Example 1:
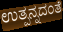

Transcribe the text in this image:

ಉತ್ಪನ್ನದಂತೆ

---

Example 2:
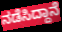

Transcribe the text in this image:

ನಡೆಸಿದ್ದಾನೆ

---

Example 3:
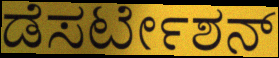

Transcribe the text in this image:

ಡೆಸರ್ಟೇಶನ್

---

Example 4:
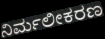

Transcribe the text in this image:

ನಿರ್ಮಲೀಕರಣ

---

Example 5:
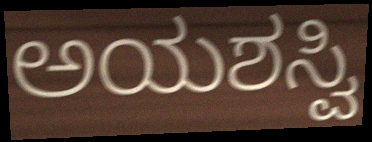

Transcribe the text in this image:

ಅಯಶಸ್ವಿ